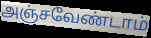
அஞ்சவேண்டாம்